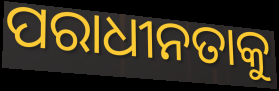
ପରାଧୀନତାକୁ